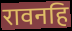
रावनहि